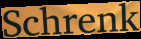
Schrenk